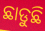
ଛାଡୁଛି